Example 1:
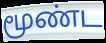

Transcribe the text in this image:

மூண்ட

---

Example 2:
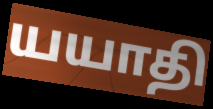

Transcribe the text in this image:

யயாதி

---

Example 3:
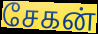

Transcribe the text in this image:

சேகன்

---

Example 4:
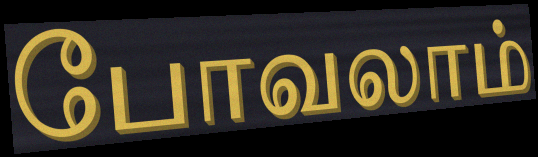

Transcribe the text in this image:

போவலாம்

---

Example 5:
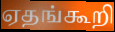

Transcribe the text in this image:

ஏதங்கூறி